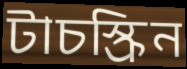
টাচস্ক্রিন